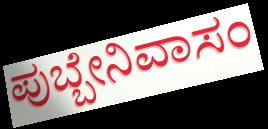
ಪುಬ್ಬೇನಿವಾಸಂ